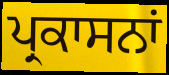
ਪ੍ਰਕਾਸਨਾਂ